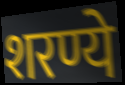
शरण्ये